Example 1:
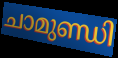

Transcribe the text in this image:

ചാമുണ്ഡി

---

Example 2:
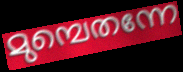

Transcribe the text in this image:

മുമ്പെതന്നേ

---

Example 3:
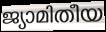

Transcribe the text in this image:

ജ്യാമിതീയ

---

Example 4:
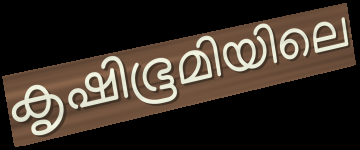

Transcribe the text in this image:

കൃഷിഭൂമിയിലെ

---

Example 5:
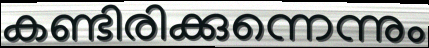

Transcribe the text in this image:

കണ്ടിരിക്കുന്നെന്നും